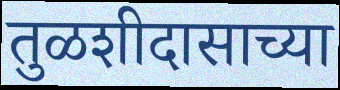
तुळशीदासाच्या